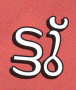
ട്ടു്